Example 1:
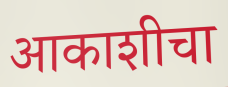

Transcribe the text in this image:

आकाशीचा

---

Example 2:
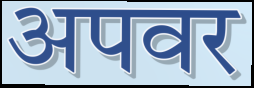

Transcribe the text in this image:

अपवर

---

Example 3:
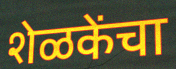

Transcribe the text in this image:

शेळकेंचा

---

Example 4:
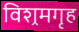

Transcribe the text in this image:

विश्रमगृह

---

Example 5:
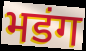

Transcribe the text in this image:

भडंग